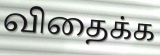
விதைக்க